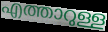
എത്താറുള്ള